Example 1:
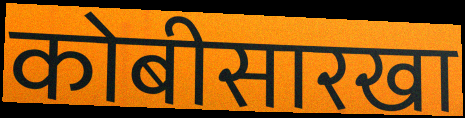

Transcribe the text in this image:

कोबीसारखा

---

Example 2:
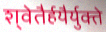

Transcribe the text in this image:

श्वेतैर्हयैर्युक्ते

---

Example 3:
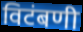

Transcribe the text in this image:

विटंबणी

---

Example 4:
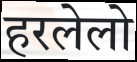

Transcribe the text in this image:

हरलेलो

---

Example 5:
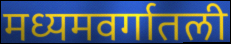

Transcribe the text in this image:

मध्यमवर्गातली